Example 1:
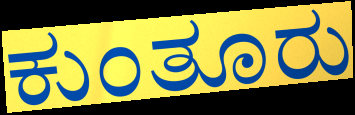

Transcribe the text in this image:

ಕುಂತೂರು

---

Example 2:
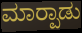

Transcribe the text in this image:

ಮಾರ‍್ಪಾಡು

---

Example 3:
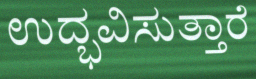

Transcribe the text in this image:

ಉದ್ಭವಿಸುತ್ತಾರೆ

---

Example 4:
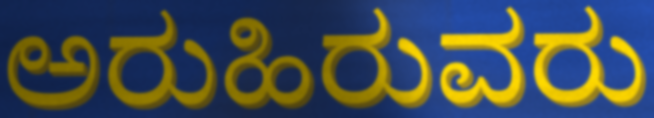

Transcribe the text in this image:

ಅರುಹಿರುವರು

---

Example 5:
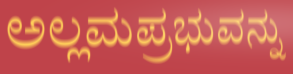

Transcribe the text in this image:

ಅಲ್ಲಮಪ್ರಭುವನ್ನು